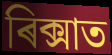
ৰিক্সাত